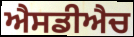
ਐਸਡੀਐਚ